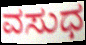
ವಸುಧ